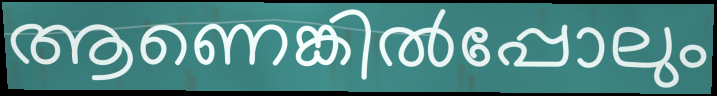
ആണെങ്കിൽപ്പോലും